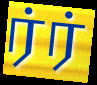
ர்ர்